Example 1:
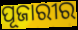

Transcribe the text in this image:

ପୂଜାରୀର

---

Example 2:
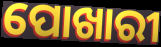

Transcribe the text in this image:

ପୋଖାରୀ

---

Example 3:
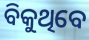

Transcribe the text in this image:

ବିକୁଥିବେ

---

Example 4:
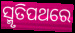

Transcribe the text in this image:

ସ୍ମୃତିପଥରେ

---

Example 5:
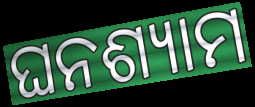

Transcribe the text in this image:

ଘନଶ୍ୟାମ